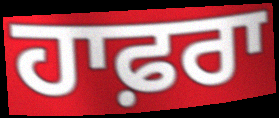
ਹਾਫ਼ਰਾ